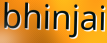
bhinjai